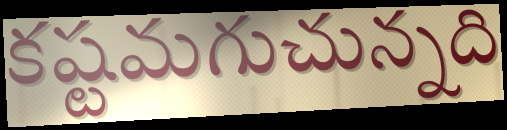
కష్టమగుచున్నది